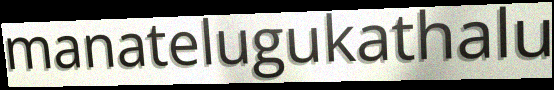
manatelugukathalu